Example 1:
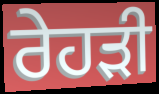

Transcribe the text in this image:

ਰੇਹੜੀ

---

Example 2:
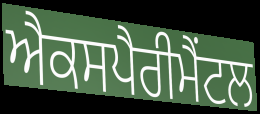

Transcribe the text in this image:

ਐਕਸਪੈਰੀਮੈਂਟਲ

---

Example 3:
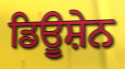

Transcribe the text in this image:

ਡਿਊਸ਼ੇਨ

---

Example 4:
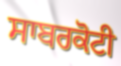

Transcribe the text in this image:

ਸਾਬਰਕੋਟੀ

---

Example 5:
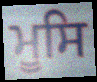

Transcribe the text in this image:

ਮੂਸਿ